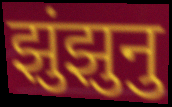
झुंझुनु